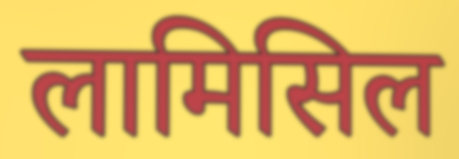
लामिसिल